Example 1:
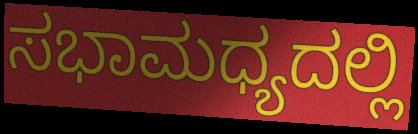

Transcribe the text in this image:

ಸಭಾಮಧ್ಯದಲ್ಲಿ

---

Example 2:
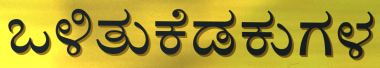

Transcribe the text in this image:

ಒಳಿತುಕೆಡಕುಗಳ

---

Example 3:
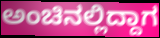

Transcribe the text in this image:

ಅಂಚಿನಲ್ಲಿದ್ದಾಗ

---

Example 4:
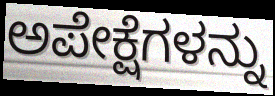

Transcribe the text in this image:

ಅಪೇಕ್ಷೆಗಳನ್ನು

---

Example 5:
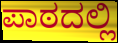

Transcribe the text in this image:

ಪಾಠದಲ್ಲಿ